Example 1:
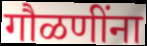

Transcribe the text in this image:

गौळणींना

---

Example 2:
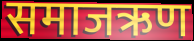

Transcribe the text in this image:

समाजऋण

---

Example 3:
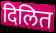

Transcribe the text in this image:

दिलित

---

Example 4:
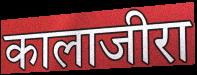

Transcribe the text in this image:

कालाजीरा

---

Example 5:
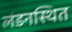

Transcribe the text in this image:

लंडनस्थित